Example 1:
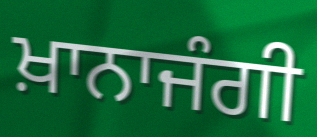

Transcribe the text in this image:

ਖ਼ਾਨਾਜੰਗੀ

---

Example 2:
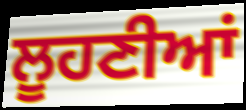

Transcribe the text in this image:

ਲੂਹਣੀਆਂ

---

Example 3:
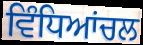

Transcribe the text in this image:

ਵਿੰਧਿਆਂਚਲ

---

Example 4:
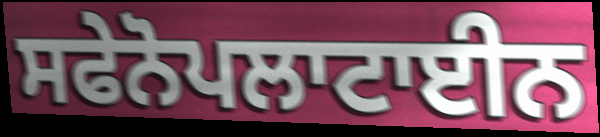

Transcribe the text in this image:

ਸਫੇਨੋਪਲਾਟਾਈਨ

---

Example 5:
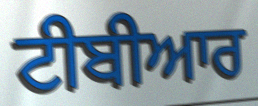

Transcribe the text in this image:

ਟੀਬੀਆਰ